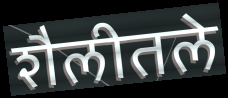
शैलीतले